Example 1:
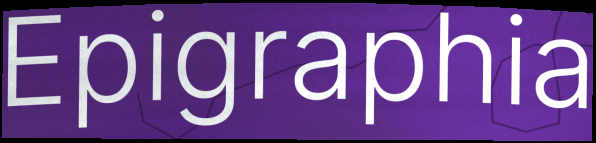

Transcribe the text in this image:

Epigraphia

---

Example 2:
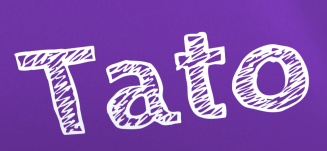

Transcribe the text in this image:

Tato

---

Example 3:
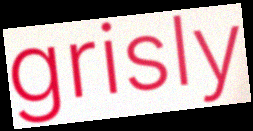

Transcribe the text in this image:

grisly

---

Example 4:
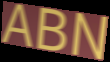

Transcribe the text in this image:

ABN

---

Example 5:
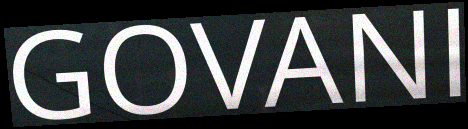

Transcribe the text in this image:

GOVANI